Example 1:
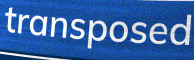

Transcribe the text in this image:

transposed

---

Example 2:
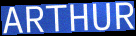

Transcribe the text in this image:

ARTHUR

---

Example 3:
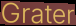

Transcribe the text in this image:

Grater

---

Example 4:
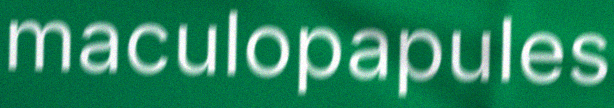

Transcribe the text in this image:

maculopapules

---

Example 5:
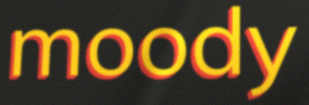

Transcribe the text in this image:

moody